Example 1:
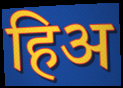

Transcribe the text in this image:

हिअ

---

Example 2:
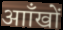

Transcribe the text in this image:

आाँखों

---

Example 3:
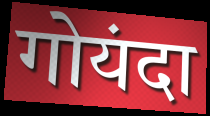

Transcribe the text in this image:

गोयंदा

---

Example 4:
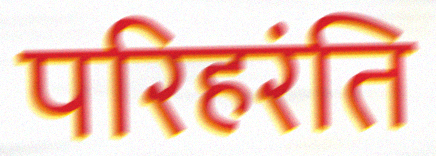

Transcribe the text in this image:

परिहरंति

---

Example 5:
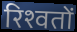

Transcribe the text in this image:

रिश्वतों